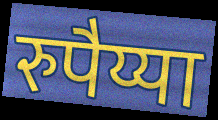
रुपैय्या